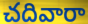
చదివారా